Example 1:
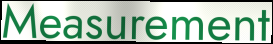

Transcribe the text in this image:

Measurement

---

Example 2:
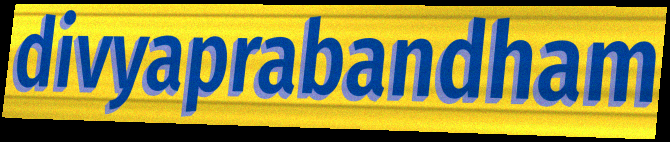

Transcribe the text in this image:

divyaprabandham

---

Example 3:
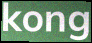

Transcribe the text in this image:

kong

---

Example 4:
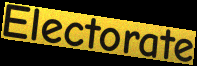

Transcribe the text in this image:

Electorate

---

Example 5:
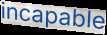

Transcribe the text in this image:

incapable